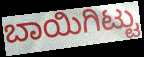
ಬಾಯಿಗಿಟ್ಟು